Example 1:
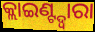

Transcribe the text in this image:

କ୍ଲାଇଣ୍ଟ୍ଦ୍ୱାରା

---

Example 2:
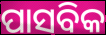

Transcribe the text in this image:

ପାସବିକ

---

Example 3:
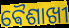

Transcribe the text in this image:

ଵୈଶାଖୀ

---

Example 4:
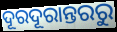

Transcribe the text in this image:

ଦୂରଦୂରାନ୍ତରରୁ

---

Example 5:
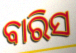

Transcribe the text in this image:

ବାରିସ